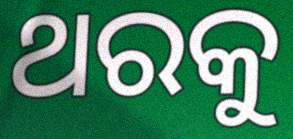
ଥରକୁ